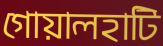
গোয়ালহাটি